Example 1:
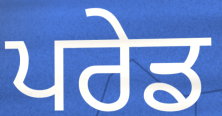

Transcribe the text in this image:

ਪਰੇਡ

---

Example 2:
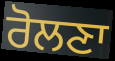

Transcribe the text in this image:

ਰੋਲਣਾ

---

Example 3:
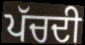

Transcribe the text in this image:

ਪੱਚਦੀ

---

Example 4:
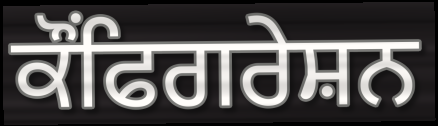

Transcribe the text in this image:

ਕੌਂਫਿਗਰੇਸ਼ਨ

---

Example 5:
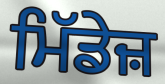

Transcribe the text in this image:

ਮਿੱਡੇਜ਼